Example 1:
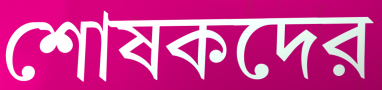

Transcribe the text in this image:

শোষকদের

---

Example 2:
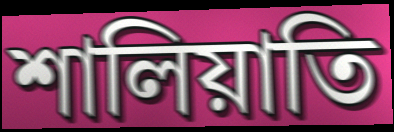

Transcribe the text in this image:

শালিয়াতি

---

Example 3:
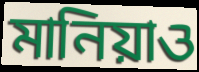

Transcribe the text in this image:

মানিয়াও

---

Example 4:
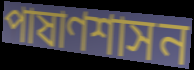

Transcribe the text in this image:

পাষাণশাসন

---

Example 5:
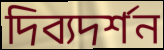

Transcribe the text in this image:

দিব্যদর্শন